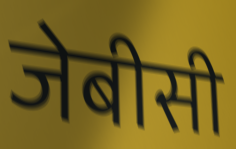
जेबीसी